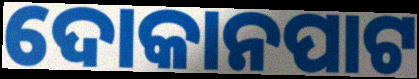
ଦୋକାନପାଟ